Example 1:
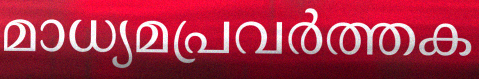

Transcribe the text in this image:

മാധ്യമപ്രവർത്തക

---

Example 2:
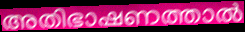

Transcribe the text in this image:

അതിഭാഷണത്താൽ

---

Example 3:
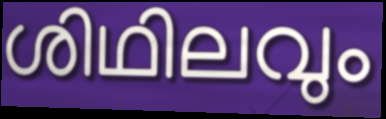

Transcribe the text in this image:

ശിഥിലവും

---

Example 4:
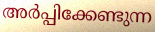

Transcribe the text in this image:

അർപ്പിക്കേണ്ടുന്ന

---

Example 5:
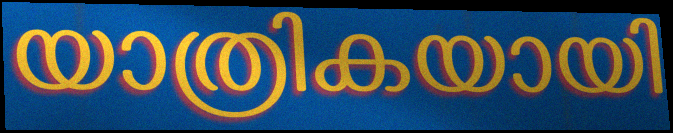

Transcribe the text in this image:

യാത്രികയായി